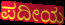
ಪದೀಯ